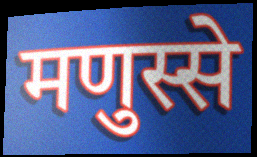
मणुस्से